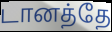
டானத்தே